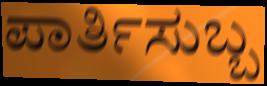
ಪಾರ್ತಿಸುಬ್ಬ